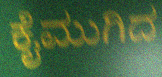
ಕೈಮುಗಿದ